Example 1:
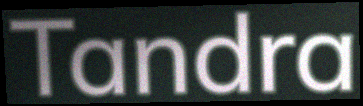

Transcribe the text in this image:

Tandra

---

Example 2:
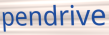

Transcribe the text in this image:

pendrive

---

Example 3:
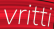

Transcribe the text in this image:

vritti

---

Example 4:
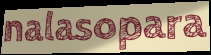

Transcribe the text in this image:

nalasopara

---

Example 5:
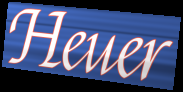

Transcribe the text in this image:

Heuer